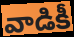
వాడికీ